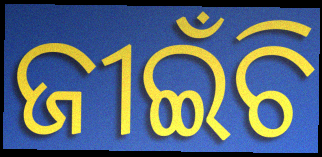
ଜୀଇଁଚି